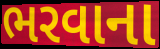
ભરવાના